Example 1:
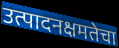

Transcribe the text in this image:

उत्पादनक्षमतेचा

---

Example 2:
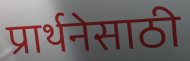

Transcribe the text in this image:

प्रार्थनेसाठी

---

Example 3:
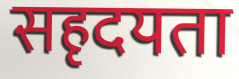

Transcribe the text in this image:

सहृदयता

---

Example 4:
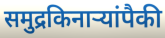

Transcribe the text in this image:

समुद्रकिनाऱ्यांपैकी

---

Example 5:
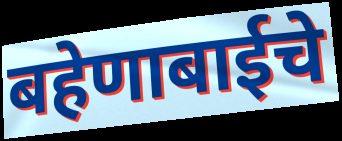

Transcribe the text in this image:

बहेणाबाईचे